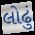
લોઢું